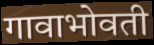
गावाभोवती